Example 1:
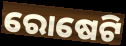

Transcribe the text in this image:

ରୋଷେଟି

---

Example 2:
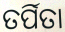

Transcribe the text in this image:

ତର୍ପିତା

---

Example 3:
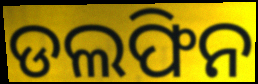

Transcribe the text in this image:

ଡଲଫିନ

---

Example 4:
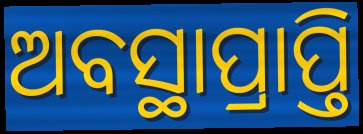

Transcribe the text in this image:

ଅବସ୍ଥାପ୍ରାପ୍ତି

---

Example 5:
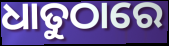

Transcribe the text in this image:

ଧାତୁଠାରେ